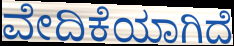
ವೇದಿಕೆಯಾಗಿದೆ